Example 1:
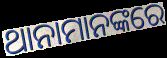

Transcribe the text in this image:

ଥାନାମାନଙ୍କରେ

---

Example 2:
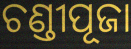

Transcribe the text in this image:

ଚଣ୍ଡୀପୂଜା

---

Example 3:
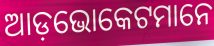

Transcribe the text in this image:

ଆଡ଼ଭୋକେଟମାନେ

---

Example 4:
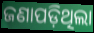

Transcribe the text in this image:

ଜଣାପଡ଼ିଥିଲା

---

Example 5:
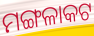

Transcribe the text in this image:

ମଙ୍ଗଳାକଟ